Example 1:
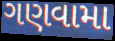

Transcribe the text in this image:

ગણવામા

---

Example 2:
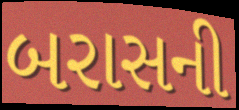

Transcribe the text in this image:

બરાસની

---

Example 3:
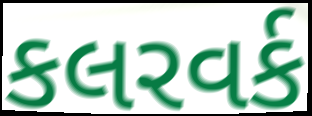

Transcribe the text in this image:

કલરવર્ક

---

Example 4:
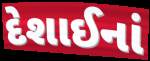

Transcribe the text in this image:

દેશાઈનાં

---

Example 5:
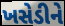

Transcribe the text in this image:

ખસેડીને